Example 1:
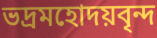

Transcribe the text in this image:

ভদ্রমহোদয়বৃন্দ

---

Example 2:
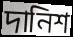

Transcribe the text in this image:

দানিশ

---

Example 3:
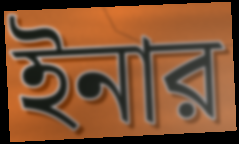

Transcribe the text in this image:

ইনার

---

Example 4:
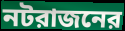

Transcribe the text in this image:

নটরাজনের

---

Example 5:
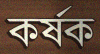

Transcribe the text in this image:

কর্ষক